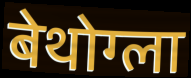
बेथोग्ला